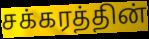
சக்கரத்தின்